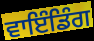
ਵਾਇੰਡਿੰਗ